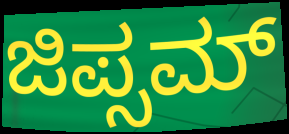
ಜಿಪ್ಸಮ್